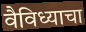
वैविध्याचा